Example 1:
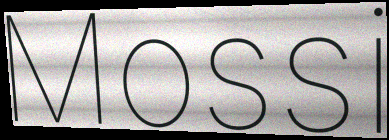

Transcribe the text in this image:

Mossi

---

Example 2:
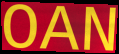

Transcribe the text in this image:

OAN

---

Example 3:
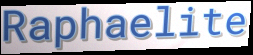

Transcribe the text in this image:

Raphaelite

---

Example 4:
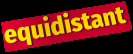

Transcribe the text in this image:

equidistant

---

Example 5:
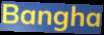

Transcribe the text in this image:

Bangha